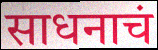
साधनाचं